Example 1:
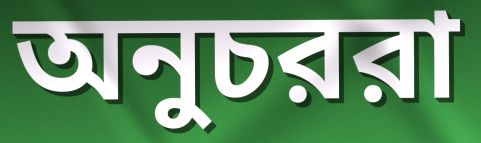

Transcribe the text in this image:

অনুচররা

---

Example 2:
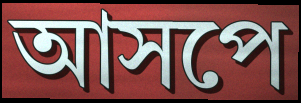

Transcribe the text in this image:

আসপে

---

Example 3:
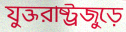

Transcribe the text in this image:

যুক্তরাষ্ট্রজুড়ে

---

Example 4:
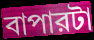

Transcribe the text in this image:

বাপারটা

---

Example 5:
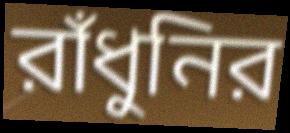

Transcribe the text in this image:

রাঁধুনির